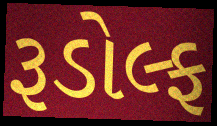
રૂડોલ્ફ